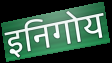
इनिगोय